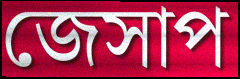
জেসাপ